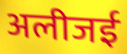
अलीजई